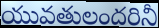
యువతులందరినీ